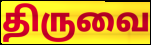
திருவை